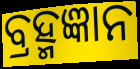
ବ୍ରହ୍ମଜ୍ଞାନ